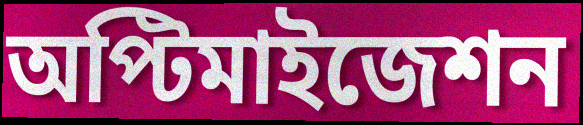
অপ্টিমাইজেশন